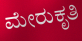
ಮೇರುಕೃತಿ